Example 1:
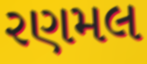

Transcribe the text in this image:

રણમલ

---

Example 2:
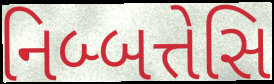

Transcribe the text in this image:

નિબ્બત્તેસિ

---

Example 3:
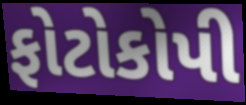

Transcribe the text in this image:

ફોટોકોપી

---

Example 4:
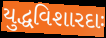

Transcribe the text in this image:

યુદ્ધવિશારદાઃ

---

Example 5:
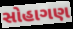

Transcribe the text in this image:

સોહાગણ